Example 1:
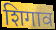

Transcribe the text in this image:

शिगाव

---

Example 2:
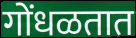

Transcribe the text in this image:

गोंधळतात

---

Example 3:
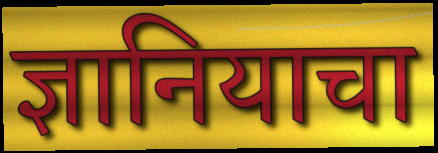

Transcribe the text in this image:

ज्ञानियाचा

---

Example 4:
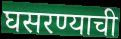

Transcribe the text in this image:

घसरण्याची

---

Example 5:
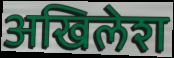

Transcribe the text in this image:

अखिलेश